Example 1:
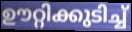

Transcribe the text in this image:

ഊറ്റിക്കുടിച്ച്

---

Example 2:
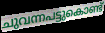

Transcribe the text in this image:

ചുവന്നപട്ടുകൊണ്ട്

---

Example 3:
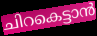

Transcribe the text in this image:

ചിറകെട്ടാൻ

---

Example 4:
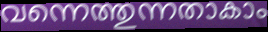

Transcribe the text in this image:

വന്നെത്തുന്നതാകാം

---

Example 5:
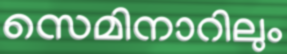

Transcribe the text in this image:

സെമിനാറിലും